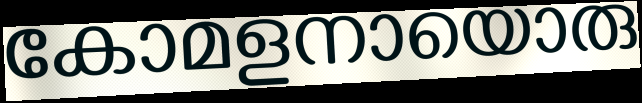
കോമളനായൊരു